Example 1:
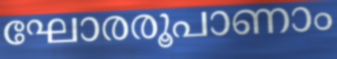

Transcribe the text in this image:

ഘോരരൂപാണാം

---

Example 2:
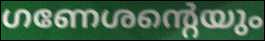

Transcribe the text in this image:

ഗണേശന്റെയും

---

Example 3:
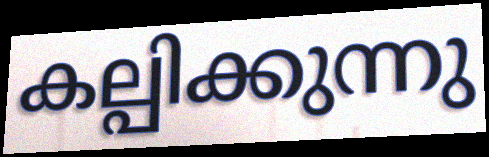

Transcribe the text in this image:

കല്പിക്കുന്നു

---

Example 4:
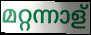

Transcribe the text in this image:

മറ്റന്നാള്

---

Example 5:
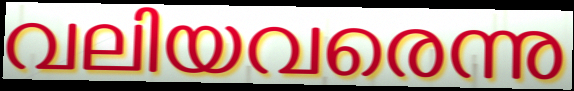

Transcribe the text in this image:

വലിയവരെന്നു